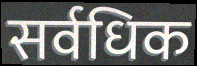
सर्वधिक